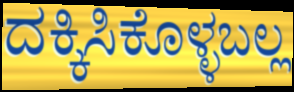
ದಕ್ಕಿಸಿಕೊಳ್ಳಬಲ್ಲ